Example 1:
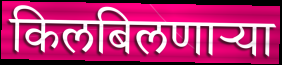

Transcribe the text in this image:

किलबिलणाऱ्या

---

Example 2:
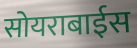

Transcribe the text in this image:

सोयराबाईस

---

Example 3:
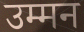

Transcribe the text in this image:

उम्मन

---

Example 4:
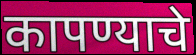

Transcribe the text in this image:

कापण्याचे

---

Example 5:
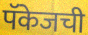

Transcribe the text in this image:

पॅकेजची